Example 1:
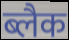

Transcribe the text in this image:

ब्‍लैक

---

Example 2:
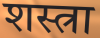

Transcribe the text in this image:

शस्त्रा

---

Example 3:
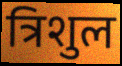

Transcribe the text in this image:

त्रिशुल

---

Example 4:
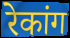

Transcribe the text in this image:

रेकांग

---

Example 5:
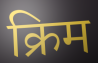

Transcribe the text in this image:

क्रिम